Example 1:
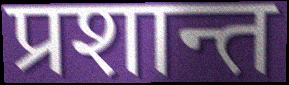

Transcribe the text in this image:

प्रशान्त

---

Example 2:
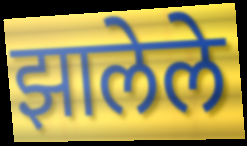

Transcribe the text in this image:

झालेले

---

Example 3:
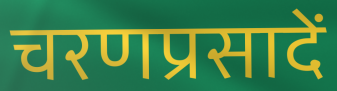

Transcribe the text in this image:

चरणप्रसादें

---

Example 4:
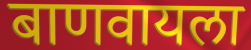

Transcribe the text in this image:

बाणवायला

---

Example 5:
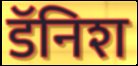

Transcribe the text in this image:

डॅनिश